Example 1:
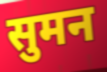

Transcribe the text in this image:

सुमन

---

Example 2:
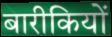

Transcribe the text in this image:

बारीकियों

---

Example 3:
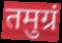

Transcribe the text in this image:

तमुग्रं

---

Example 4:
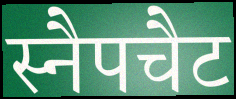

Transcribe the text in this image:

स्नैपचैट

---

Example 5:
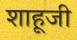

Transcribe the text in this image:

शाहूजी